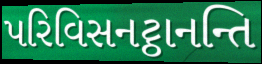
પરિવિસનટ્ઠાનન્તિ